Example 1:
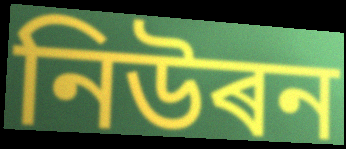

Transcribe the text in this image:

নিউৰন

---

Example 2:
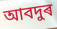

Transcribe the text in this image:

আবদুৰ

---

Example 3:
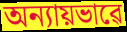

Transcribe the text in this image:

অন্যায়ভাৱে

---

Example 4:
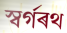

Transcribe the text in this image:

স্বৰ্গৰথ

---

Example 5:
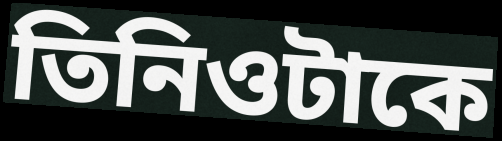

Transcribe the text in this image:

তিনিওটাকে